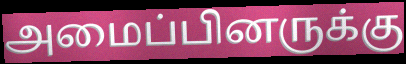
அமைப்பினருக்கு